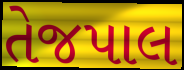
તેજપાલ